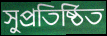
সুপ্ৰতিষ্ঠিত